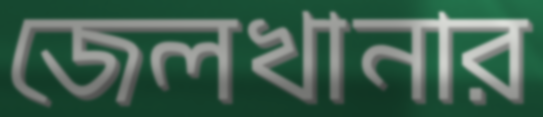
জেলখানার